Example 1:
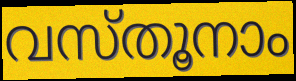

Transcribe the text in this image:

വസ്തൂനാം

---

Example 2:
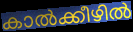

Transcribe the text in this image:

കാൽക്കീഴിൽ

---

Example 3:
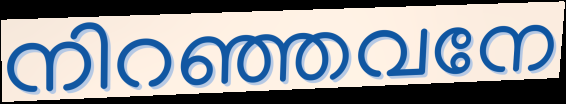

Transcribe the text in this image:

നിറഞ്ഞവനേ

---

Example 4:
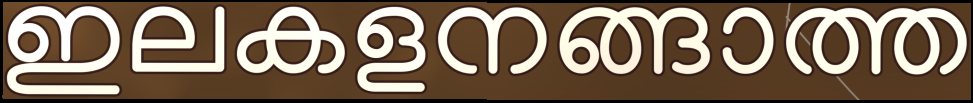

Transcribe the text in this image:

ഇലകളനങ്ങാത്ത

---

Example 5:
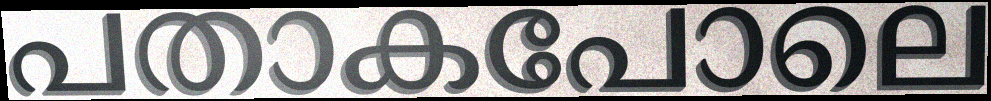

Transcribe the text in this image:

പതാകപോലെ